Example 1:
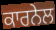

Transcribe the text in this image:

ਕਾਰਨੇਲ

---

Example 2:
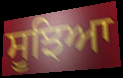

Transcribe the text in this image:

ਸੂਝਿਆ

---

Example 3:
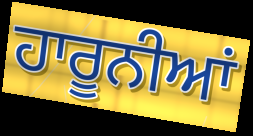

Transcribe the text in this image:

ਹਾਰੂਨੀਆਂ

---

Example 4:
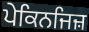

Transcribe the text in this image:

ਪੇਕਿਨਜਿਜ਼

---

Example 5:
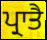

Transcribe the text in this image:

ਪ੍ਰਾਤੈ